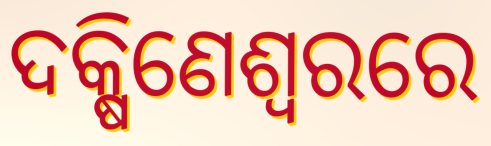
ଦକ୍ଷିଣେଶ୍ୱରରେ